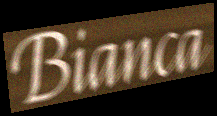
Bianca